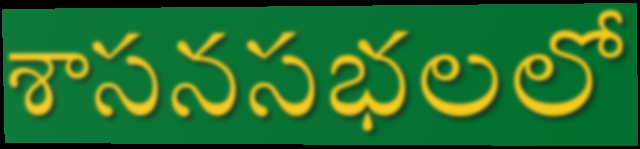
శాసనసభలలో